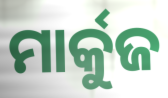
ମାର୍କୁଜ